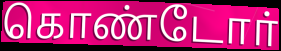
கொண்டோர்